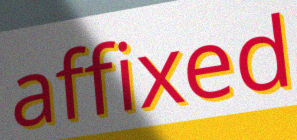
affixed